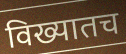
विख्यातच